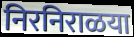
निरनिराळया